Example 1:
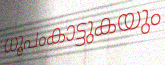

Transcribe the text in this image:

ധൂപംകാട്ടുകയും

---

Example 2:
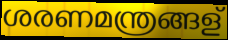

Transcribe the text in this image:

ശരണമന്ത്രങ്ങള്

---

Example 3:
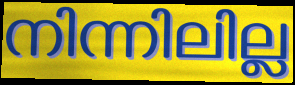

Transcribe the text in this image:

നിന്നിലില്ല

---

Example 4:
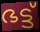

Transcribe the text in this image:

ഭട്ട്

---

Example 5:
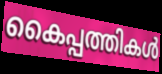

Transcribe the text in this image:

കൈപ്പത്തികൾ